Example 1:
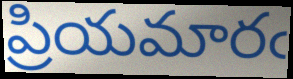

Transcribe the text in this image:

ప్రియమారఁ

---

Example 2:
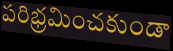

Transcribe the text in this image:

పరిభ్రమించకుండా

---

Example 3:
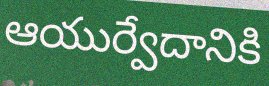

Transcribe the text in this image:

ఆయుర్వేదానికి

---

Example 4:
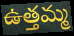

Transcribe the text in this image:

ఉత్తమ్మ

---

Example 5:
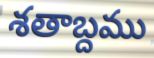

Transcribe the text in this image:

శతాబ్దము